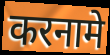
करनामे